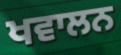
ਖਵਾਲਨ